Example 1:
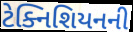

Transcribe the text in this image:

ટેક્નિશિયનની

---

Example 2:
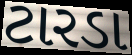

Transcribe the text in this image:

ટારડા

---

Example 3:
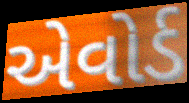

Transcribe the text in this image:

એવોર્ડ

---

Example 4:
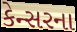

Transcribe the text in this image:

કેન્સરના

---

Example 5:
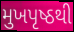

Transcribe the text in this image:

મુખપૃષ્ઠથી